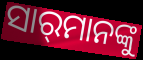
ସାର୍‌ମାନଙ୍କୁ